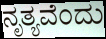
ನೃತ್ಯವೆಂದು